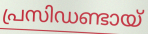
പ്രസിഡണ്ടായ്